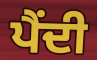
ਪੈਂਦੀ